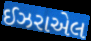
ઈઝરાએલ